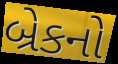
બ્રેકનો